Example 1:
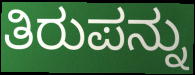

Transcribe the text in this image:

ತಿರುಪನ್ನು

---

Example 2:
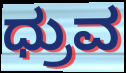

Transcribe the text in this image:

ಧ್ರುವ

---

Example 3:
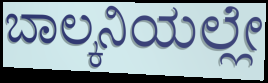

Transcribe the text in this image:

ಬಾಲ್ಕನಿಯಲ್ಲೇ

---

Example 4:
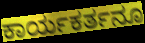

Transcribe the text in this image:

ಕಾರ್ಯಕರ್ತನೂ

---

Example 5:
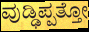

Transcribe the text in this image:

ವುಡ್ಢಿಪ್ಪತ್ತೋ